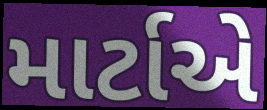
માર્ટાએ